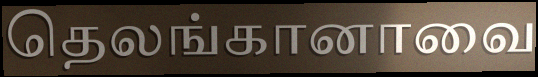
தெலங்கானாவை